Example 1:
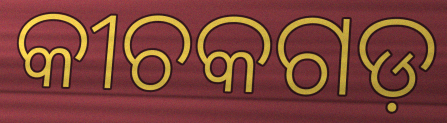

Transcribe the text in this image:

କୀଚକଗଡ଼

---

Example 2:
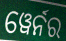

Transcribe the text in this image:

ୱେର୍ନର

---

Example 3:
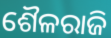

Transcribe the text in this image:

ଶୈଳରାଜି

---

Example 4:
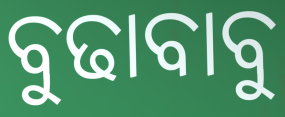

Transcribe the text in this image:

ବୁଢାବାବୁ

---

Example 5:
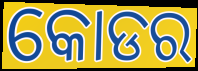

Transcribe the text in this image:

କୋଡର